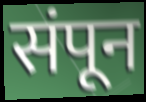
संपून